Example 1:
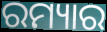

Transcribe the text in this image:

ରମ୍ୟାର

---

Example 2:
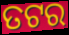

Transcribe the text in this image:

ତଟର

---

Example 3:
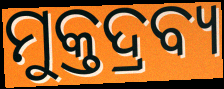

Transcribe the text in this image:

ମୁକ୍ତଦ୍ରବ୍ୟ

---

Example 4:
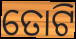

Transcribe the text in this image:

ତୋଟି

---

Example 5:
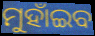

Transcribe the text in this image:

ମୁହାଁଇବ